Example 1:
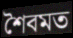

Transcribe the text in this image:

শৈবমত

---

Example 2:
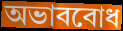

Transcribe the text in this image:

অভাববোধ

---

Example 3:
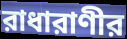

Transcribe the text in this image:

রাধারাণীর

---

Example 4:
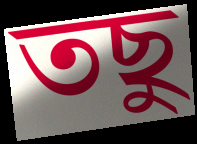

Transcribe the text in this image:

তছু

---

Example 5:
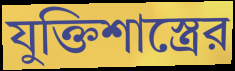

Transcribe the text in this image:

যুক্তিশাস্ত্রের